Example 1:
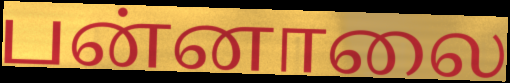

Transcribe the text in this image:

பன்னாலை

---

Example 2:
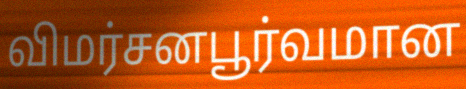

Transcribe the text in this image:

விமர்சனபூர்வமான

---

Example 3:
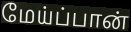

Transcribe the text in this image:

மேய்ப்பான்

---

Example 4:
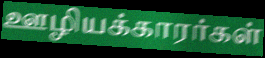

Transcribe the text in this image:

ஊழியக்காரர்கள்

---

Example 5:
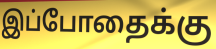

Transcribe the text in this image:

இப்போதைக்கு